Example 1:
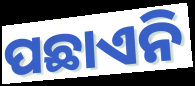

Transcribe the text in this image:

ପଛାଏନି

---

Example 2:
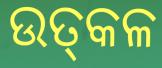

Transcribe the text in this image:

ଉତ୍‌କଳ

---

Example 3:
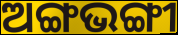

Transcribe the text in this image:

ଅଙ୍ଗଭଙ୍ଗୀ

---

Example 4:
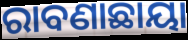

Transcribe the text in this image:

ରାବଣାଛାୟା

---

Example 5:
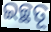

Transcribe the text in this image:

ଇଚ୍ଛତୂ